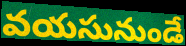
వయసునుండే